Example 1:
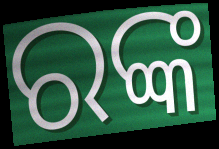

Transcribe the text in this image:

ରଙ୍କ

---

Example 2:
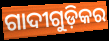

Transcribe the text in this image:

ଗାଦୀଗୁଡ଼ିକର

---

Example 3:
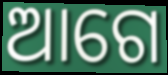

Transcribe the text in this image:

ଆଗେ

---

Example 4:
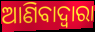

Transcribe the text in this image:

ଆଣିବାଦ୍ୱାରା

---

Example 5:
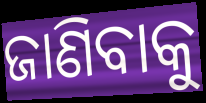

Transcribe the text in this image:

ଜାଣିବାକୁ